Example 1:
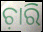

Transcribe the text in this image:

ଚ଼ାରି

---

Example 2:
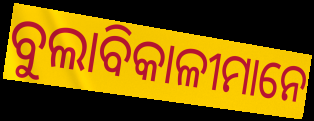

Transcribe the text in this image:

ବୁଲାବିକାଳୀମାନେ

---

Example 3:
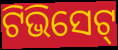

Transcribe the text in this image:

ଟିଭିସେଟ୍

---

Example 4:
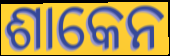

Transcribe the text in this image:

ଶାକେନ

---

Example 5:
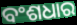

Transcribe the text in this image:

ବଂଶଧାର